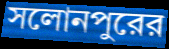
সলোনপুরের